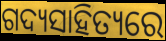
ଗଦ୍ୟସାହିତ୍ୟରେ